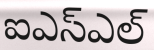
ఐఎస్ఎల్